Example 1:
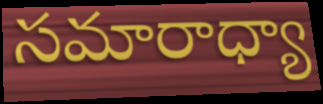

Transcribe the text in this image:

సమారాధ్యా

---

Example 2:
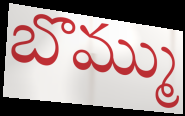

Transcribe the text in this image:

బొమ్ము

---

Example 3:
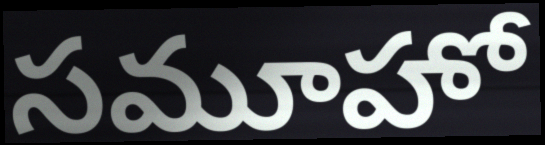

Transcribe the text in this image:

సమూహో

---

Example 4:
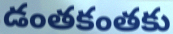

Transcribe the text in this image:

డంతకంతకు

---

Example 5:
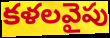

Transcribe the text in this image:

కళలవైపు